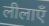
लीलाएँ